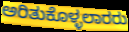
ಅರಿತುಕೊಳ್ಳಲಾರರು